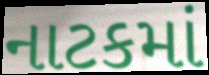
નાટકમાં